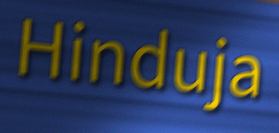
Hinduja